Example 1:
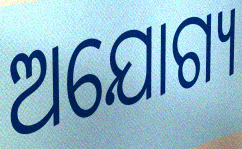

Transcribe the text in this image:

ଅଯୋଗ୍ୟ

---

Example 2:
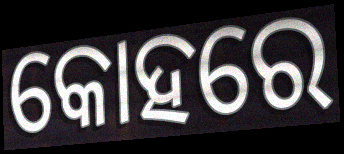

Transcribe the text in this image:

କୋହରେ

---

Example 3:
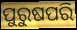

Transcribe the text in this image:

ପୁରୁଷପରି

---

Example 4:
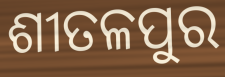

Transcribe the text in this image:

ଶୀତଳପୁର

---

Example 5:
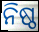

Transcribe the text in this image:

ନିଷ୍ଠ